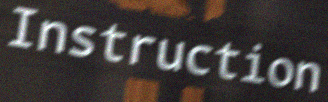
Instruction